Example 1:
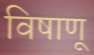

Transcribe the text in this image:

विषाणू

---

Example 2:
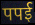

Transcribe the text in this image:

पपई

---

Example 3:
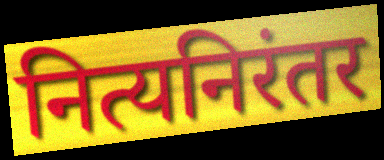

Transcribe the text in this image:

नित्यनिरंतर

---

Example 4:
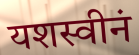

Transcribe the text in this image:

यशस्वीनं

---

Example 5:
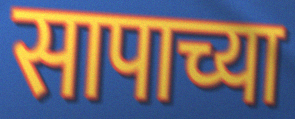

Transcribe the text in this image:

सापाच्या